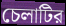
চেলাটির